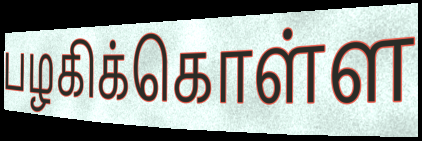
பழகிக்கொள்ள